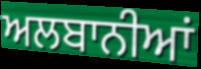
ਅਲਬਾਨੀਆਂ